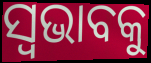
ସ୍ୱଭାବକୁ